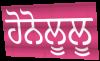
ਹੋਨੋਲੂਲੂ